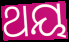
ଥୟ